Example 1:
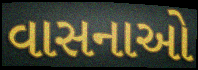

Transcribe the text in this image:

વાસનાઓ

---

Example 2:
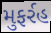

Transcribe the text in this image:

મુફર્રહ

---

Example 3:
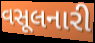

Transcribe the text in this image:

વસૂલનારી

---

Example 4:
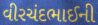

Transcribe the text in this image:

વીરચંદભાઈની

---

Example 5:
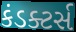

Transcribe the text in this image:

કંડક્ટર્સ